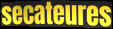
secateures